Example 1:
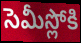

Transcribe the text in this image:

సెమీస్లోకి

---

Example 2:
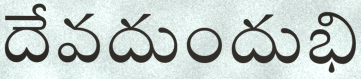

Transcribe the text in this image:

దేవదుందుభి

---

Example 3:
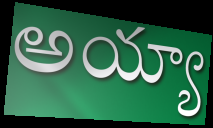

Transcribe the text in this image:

అయ్యా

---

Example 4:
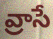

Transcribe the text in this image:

వ్రాసే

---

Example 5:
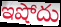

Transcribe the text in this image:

ఇషోదు